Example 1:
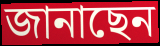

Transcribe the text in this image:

জানাছেন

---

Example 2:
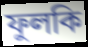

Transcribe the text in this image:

ফুলকি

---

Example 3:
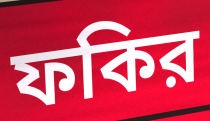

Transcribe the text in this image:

ফকির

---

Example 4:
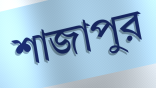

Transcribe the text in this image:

শাজাপুর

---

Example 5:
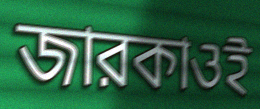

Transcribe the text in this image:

জারকাওই